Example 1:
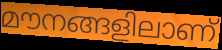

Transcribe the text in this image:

മൗനങ്ങളിലാണ്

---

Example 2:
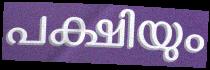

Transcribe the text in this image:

പക്ഷിയും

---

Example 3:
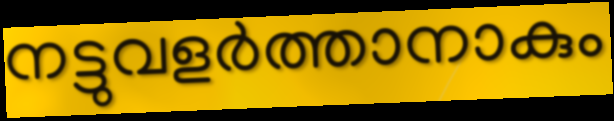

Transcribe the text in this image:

നട്ടുവളർത്താനാകും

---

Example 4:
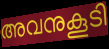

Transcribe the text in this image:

അവനുകൂടി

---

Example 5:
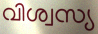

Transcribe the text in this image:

വിശ്വസ്യ